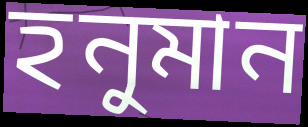
হনুমান